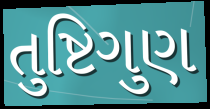
તુષ્ટિગુણ